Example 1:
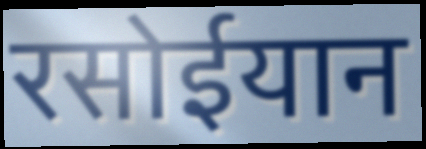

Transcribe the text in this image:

रसोईयान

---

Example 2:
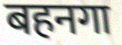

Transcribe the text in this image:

बहनगा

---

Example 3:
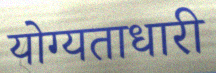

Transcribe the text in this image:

योग्यताधारी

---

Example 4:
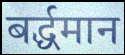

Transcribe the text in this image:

बर्द्धमान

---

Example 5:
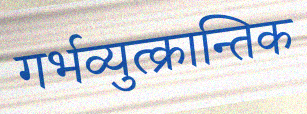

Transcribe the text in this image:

गर्भव्युत्क्रान्तिक